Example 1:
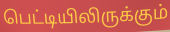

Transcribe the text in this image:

பெட்டியிலிருக்கும்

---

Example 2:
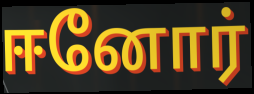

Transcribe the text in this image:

ஈனோர்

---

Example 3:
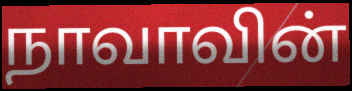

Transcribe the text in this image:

நாவாவின்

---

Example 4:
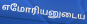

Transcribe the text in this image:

எமோரியனுடைய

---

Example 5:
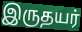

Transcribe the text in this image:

இருதயர்